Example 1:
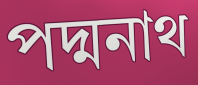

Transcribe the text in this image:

পদ্মনাথ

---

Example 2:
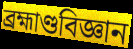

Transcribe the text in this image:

ব্ৰহ্মাণ্ডবিজ্ঞান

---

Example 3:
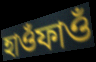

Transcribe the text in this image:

হাওঁফাওঁ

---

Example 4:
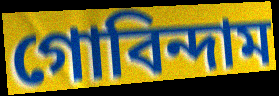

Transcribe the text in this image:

গোবিন্দাম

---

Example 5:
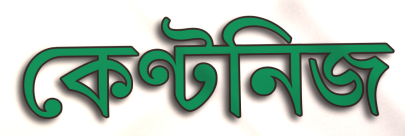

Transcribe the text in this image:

কেণ্টনিজ